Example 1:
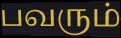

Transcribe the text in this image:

பவரும்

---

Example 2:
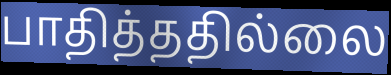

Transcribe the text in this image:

பாதித்ததில்லை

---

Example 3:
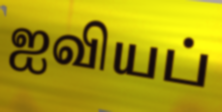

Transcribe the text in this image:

ஐவியப்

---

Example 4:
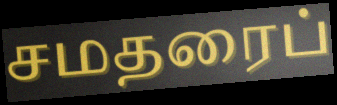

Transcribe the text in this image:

சமதரைப்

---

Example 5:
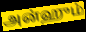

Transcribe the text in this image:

அன்ஹும்